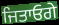
ਜਿਤਾਓਗੇ